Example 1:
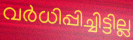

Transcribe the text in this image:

വർധിപ്പിച്ചിട്ടില്ല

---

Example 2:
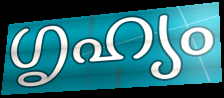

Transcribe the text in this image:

ഗൃഹ്യം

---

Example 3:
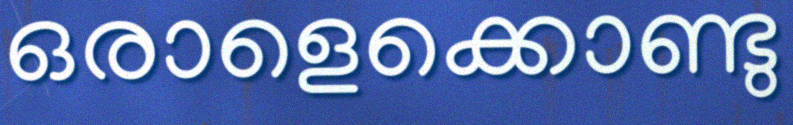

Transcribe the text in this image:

ഒരാളെക്കൊണ്ടു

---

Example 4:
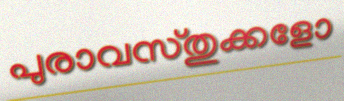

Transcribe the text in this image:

പുരാവസ്തുക്കളോ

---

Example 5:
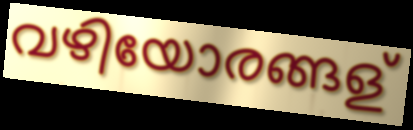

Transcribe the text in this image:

വഴിയോരങ്ങള്